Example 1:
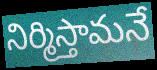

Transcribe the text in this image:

నిర్మిస్తామనే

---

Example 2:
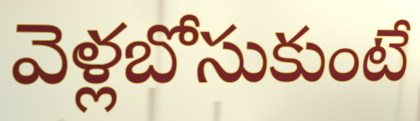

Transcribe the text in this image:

వెళ్లబోసుకుంటే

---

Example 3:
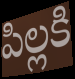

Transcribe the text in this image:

పిల్లకి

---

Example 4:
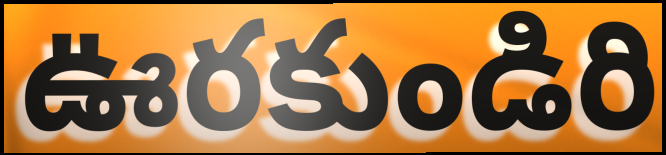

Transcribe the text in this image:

ఊరకుండిరి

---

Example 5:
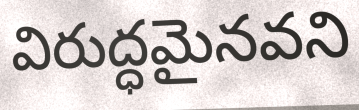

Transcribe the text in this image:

విరుద్ధమైనవని